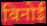
बिनोई